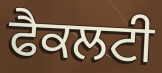
ਫੈਕਲਟੀ